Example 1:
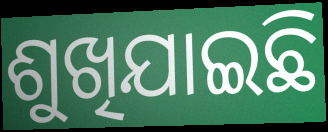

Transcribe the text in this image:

ଶୁଖିଯାଇଛି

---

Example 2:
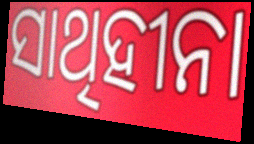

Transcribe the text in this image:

ସାଥିହୀନା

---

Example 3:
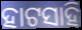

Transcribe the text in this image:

ହାଟସାହି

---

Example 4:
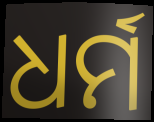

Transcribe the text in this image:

ଧର୍ମ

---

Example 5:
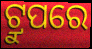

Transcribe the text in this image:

ଟ୍ରୁପରେ